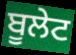
ਬੂਲੇਟ